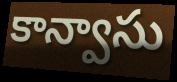
కాన్వాసు